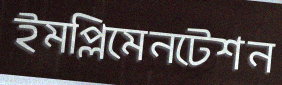
ইমপ্লিমেনটেশন